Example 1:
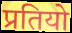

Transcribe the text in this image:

प्रतियो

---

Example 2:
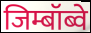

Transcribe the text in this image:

जिम्बॉब्वे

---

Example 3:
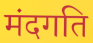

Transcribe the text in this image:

मंदगति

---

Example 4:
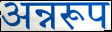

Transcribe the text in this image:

अन्नरूप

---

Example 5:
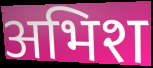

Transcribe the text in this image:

अभिश